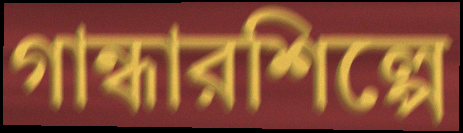
গান্ধারশিল্পে